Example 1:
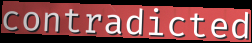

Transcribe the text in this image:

contradicted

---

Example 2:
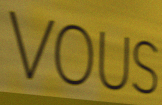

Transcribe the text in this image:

VOUS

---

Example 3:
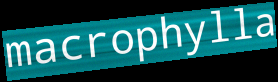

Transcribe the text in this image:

macrophylla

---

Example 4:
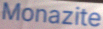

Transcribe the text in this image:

Monazite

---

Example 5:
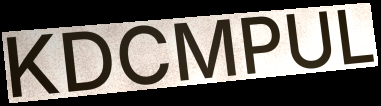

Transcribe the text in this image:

KDCMPUL